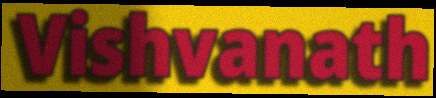
Vishvanath